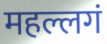
महल्लगं